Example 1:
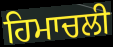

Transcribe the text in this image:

ਹਿਮਾਚਲੀ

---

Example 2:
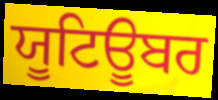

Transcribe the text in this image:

ਯੂਟਿਊਬਰ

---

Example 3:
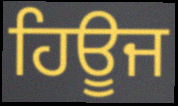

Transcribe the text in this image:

ਹਿਊਜ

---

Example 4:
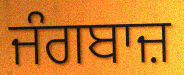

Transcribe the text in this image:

ਜੰਗਬਾਜ਼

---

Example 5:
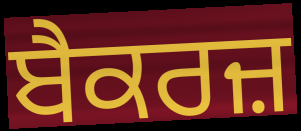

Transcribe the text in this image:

ਬੈਕਰਜ਼